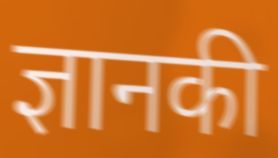
ज्ञानकी